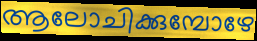
ആലോചിക്കുമ്പോഴേ